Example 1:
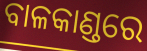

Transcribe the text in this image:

ବାଳକାଣ୍ଡରେ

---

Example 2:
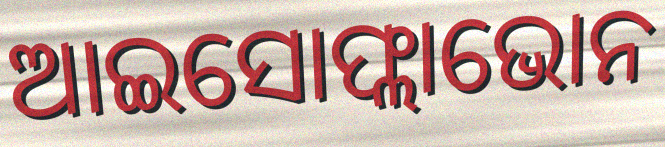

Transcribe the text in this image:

ଆଇସୋଫ୍ଲାଭୋନ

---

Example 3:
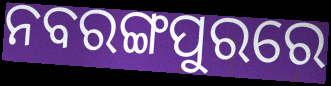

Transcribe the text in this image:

ନବରଙ୍ଗପୁରରେ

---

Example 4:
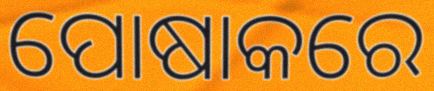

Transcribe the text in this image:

ପୋଷାକରେ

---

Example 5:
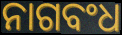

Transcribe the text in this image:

ନାଗବଂଧ